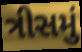
ત્રીસમું